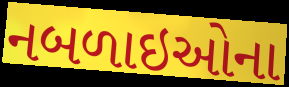
નબળાઇઓના